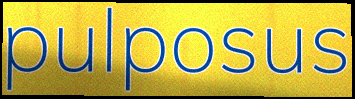
pulposus